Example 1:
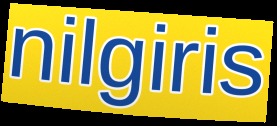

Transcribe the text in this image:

nilgiris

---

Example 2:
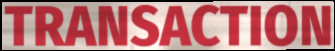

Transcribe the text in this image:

TRANSACTION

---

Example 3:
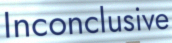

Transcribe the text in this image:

Inconclusive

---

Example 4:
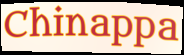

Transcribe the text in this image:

Chinappa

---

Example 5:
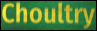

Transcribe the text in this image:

Choultry